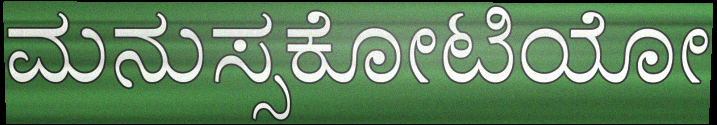
ಮನುಸ್ಸಕೋಟಿಯೋ